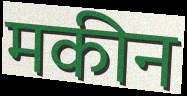
मकीन